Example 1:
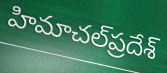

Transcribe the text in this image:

హిమాచల్‌ప్రదేశ్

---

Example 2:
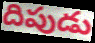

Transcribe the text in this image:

దిపుడు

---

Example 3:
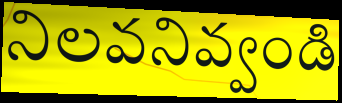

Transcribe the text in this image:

నిలవనివ్వండి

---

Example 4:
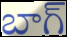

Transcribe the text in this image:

బాగ్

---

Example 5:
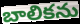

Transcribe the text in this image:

బాలికను